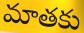
మాతకు